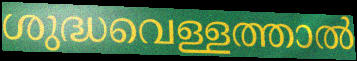
ശുദ്ധവെള്ളത്താൽ